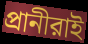
প্রানীরাই